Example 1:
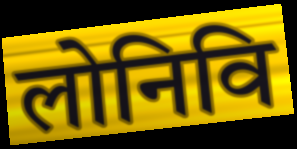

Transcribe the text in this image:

लोनिवि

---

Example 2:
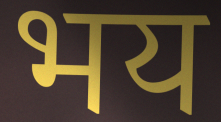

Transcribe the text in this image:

भय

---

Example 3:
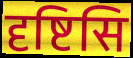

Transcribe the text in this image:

दृष्टिसि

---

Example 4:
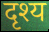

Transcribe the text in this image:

दृश्य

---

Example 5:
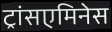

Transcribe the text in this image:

ट्रांसएमिनेस